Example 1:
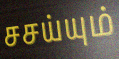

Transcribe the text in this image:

சசய்யும்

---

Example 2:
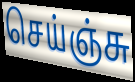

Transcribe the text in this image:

செய்ஞ்சு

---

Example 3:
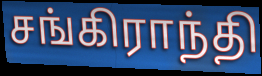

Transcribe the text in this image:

சங்கிராந்தி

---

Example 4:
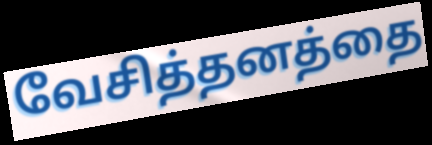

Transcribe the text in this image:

வேசித்தனத்தை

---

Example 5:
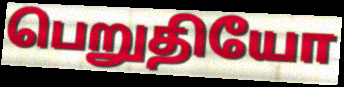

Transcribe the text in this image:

பெறுதியோ